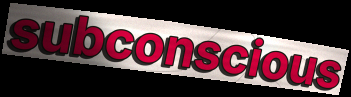
subconscious